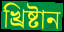
খ্ৰিষ্টান